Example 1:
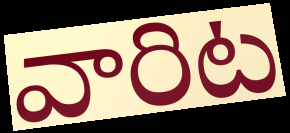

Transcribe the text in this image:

వారిట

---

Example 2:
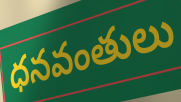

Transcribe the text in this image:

ధనవంతులు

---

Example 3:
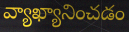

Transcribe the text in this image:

వ్యాఖ్యానించడం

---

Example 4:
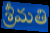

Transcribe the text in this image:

శ్రీమతి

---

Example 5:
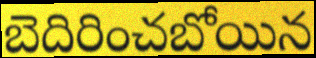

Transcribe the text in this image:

బెదిరించబోయిన